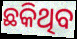
ଛକିଥିବ